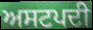
ਅਸਟਪਦੀ